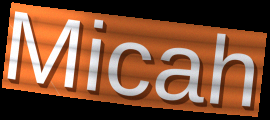
Micah